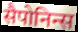
सैपोनिन्स